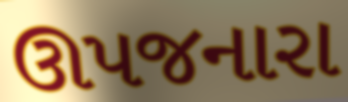
ઊપજનારા